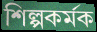
শিল্পকৰ্মক